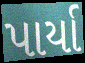
પાર્યા